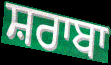
ਸ਼ਰਾਬਾ